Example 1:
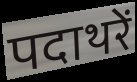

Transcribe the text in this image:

पदाथरें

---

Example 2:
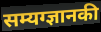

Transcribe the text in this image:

सम्यग्ज्ञानकी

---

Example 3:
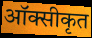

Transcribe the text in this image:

ऑक्सीकृत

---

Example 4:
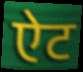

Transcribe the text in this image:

ऐट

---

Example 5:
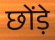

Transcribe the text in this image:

छोंड़े